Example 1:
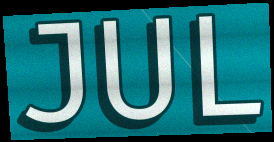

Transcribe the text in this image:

JUL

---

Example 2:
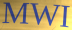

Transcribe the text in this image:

MWI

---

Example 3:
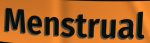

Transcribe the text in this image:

Menstrual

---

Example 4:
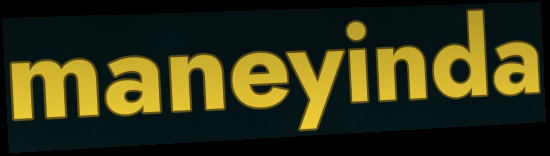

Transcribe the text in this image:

maneyinda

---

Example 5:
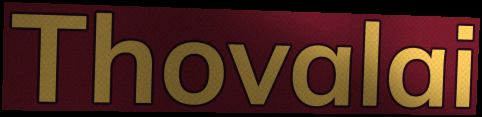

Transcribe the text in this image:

Thovalai